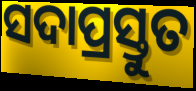
ସଦାପ୍ରସ୍ତୁତ